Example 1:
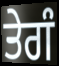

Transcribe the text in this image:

ਤੇਗੰ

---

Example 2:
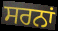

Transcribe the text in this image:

ਸਰਨਾਂ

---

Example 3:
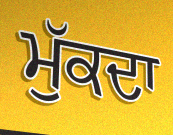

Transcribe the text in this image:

ਮੁੱਕਦਾ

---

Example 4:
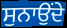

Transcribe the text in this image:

ਸੁਨਾਉਂਦੇ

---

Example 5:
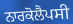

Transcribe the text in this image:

ਨਾਰਕੋਲੈਪਸੀ